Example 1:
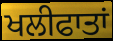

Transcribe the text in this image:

ਖਲੀਫਾਤਾਂ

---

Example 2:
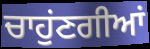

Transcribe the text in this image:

ਚਾਹੁਂਣਗੀਆਂ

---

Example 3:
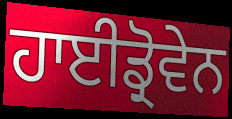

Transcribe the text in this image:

ਹਾਈਡ੍ਰੋਵੇਨ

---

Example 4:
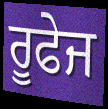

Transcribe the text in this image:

ਰੂਫੇਜ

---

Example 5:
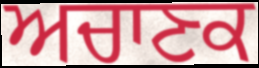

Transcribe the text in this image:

ਅਚਾਣਕ